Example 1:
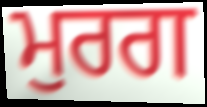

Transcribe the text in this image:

ਮੁਰਗ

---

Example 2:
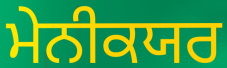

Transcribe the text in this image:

ਮੇਨੀਕਯਰ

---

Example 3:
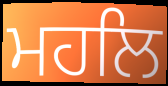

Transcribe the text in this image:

ਮਹਲਿ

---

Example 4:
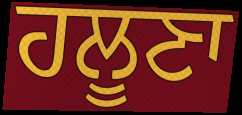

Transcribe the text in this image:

ਹਲੂਣਾ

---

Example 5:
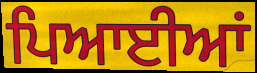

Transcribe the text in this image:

ਪਿਆਈਆਂ